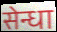
सेन्धा